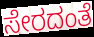
ಸೇರದಂತೆ